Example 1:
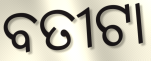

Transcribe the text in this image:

ବତୀଟା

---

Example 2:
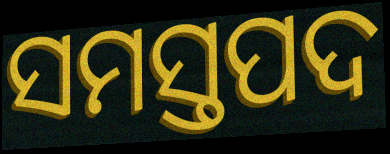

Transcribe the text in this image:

ସମସ୍ତପଦ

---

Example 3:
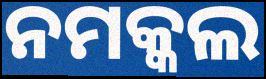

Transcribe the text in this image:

ନମକ୍କଲ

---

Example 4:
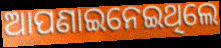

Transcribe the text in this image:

ଆପଣାଇନେଇଥିଲେ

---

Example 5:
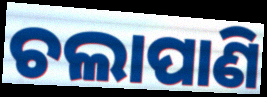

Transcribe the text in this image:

ଚଲାପାଣି